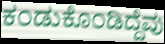
ಕಂಡುಕೊಂಡಿದ್ದೆವು